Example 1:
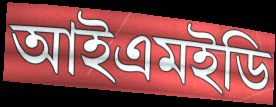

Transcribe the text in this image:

আইএমইডি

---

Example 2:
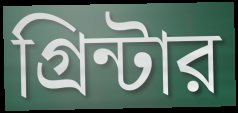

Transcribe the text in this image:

গ্রিন্টার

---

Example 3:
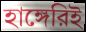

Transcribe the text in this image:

হাঙ্গেরিই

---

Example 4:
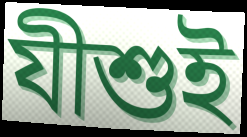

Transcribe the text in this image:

যীশুই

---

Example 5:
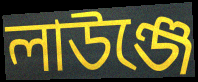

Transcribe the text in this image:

লাউঞ্জে